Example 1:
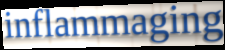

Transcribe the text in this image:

inflammaging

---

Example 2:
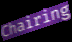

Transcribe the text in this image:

Chairing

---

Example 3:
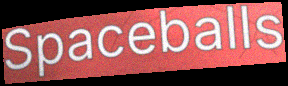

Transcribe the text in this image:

Spaceballs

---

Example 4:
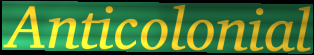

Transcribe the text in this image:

Anticolonial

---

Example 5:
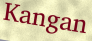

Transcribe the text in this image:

Kangan